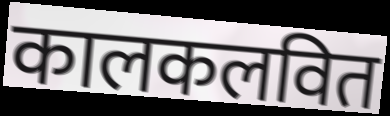
कालकलवित